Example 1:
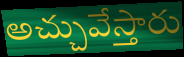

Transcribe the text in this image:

అచ్చువేస్తారు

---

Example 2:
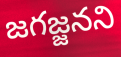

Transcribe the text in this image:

జగజ్జనని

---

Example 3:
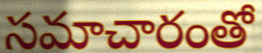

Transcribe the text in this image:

సమాచారంతో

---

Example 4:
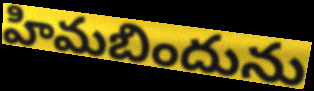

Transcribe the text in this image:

హిమబిందును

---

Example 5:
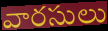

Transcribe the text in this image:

వారసులు